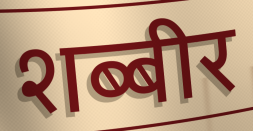
शब्बीर